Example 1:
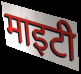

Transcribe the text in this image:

माइटी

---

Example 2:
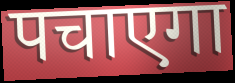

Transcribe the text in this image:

पचाएगा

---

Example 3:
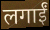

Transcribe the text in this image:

लगाईं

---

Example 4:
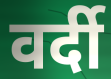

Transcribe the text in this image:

वर्दी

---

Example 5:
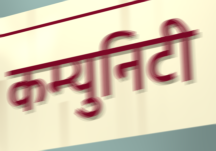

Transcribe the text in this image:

कम्युनिटी